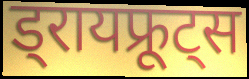
ड्रायफ्रूट्स